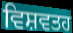
ਵਿਸ਼ਵਤਹ